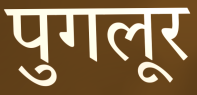
पुगलूर